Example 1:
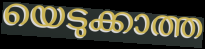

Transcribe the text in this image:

യെടുക്കാത്ത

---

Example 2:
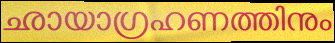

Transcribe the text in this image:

ഛായാഗ്രഹണത്തിനും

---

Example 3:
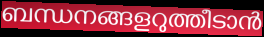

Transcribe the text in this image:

ബന്ധനങ്ങളറുത്തീടാൻ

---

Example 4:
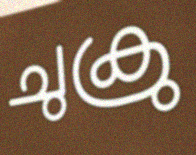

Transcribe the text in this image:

ചുക്രു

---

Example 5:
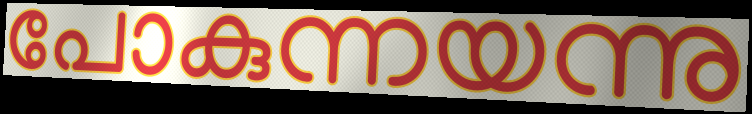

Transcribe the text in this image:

പോകുന്നയന്നു